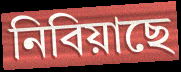
নিবিয়াছে